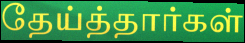
தேய்த்தார்கள்